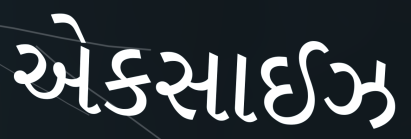
એકસાઈઝ